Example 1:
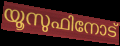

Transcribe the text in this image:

യൂസുഫിനോട്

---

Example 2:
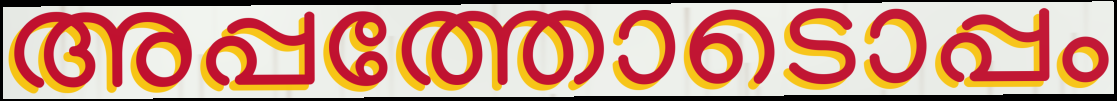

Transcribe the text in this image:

അപ്പത്തോടൊപ്പം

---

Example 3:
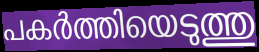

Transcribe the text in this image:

പകർത്തിയെടുത്തു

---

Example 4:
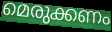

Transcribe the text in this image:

മെരുക്കണം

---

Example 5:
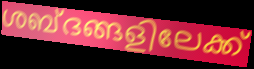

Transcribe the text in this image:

ശബ്ദങ്ങളിലേക്ക്